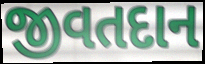
જીવતદાન